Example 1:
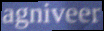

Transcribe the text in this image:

agniveer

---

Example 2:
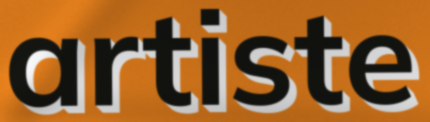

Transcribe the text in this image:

artiste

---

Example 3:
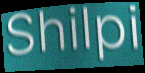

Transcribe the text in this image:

Shilpi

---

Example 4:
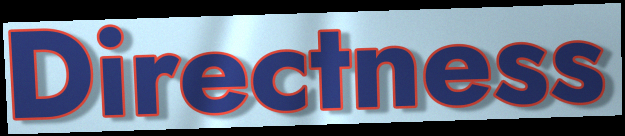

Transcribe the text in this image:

Directness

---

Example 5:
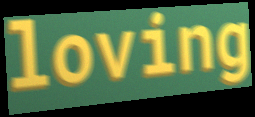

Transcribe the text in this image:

loving